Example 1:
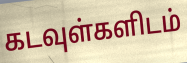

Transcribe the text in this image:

கடவுள்களிடம்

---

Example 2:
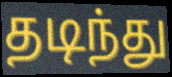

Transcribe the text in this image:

தடிந்து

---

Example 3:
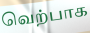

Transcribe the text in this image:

வெற்பாக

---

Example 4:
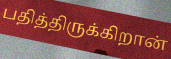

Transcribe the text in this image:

பதித்திருக்கிறான்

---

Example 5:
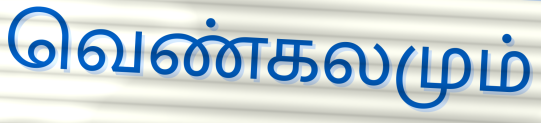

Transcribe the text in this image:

வெண்கலமும்